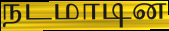
நடமாடின